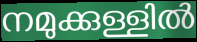
നമുക്കുള്ളിൽ